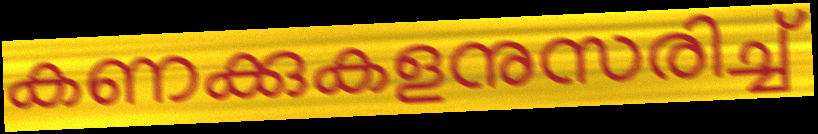
കണക്കുകളനുസരിച്ച്